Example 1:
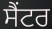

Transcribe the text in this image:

ਸੈਂਟਰ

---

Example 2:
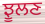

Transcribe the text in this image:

ਝੂਲਣ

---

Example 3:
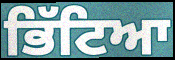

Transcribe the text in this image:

ਭਿੱਟਿਆ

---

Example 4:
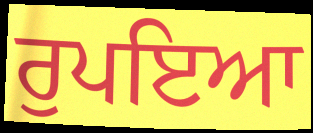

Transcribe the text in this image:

ਰੁਪਇਆ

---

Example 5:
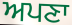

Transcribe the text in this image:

ਅਪਣਾ